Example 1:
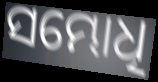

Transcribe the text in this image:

ସମ୍ଭୋଧି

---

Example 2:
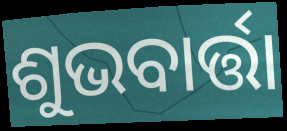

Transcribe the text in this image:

ଶୁଭବାର୍ତ୍ତା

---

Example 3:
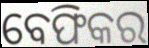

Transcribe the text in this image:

ବେଫିକର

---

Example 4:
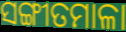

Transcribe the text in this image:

ସଙ୍ଗୀତମାଳା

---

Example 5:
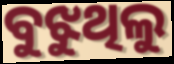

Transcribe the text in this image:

ବୁଝୁଥିଲୁ